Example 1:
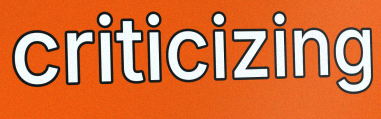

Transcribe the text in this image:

criticizing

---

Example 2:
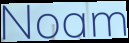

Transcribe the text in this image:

Noam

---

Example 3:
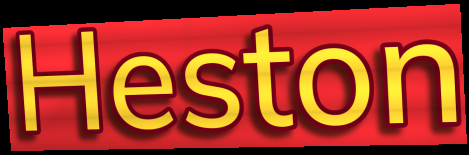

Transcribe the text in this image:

Heston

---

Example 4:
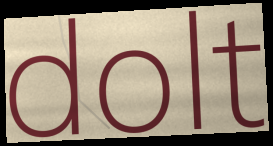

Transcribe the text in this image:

dolt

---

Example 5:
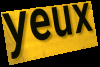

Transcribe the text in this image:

yeux